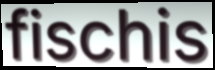
fischis